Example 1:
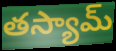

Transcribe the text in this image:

తస్యామ్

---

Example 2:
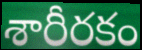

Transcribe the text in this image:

శారీరకం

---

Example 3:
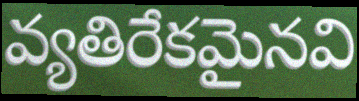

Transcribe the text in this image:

వ్యతిరేకమైనవి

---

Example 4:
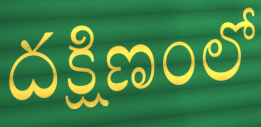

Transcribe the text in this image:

దక్షిణంలో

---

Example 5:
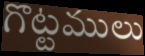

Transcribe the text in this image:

గొట్టములు